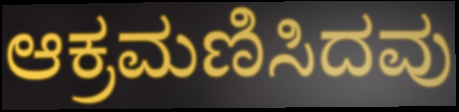
ಆಕ್ರಮಣಿಸಿದವು